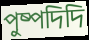
পুষ্পদিদি